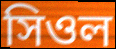
সিওল